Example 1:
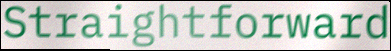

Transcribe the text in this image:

Straightforward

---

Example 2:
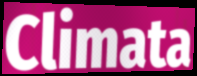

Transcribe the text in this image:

Climata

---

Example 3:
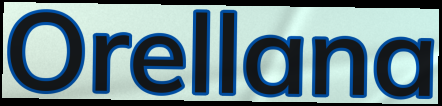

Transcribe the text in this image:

Orellana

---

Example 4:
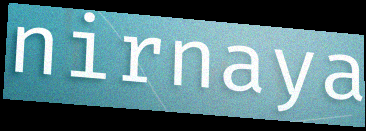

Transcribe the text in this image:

nirnaya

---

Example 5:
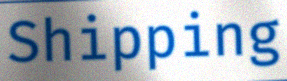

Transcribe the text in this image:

Shipping